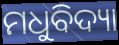
ମଧୁବିଦ୍ୟା